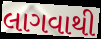
લાગવાથી